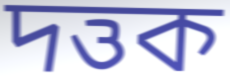
দত্তক